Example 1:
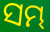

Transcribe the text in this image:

ସମ୍ଭ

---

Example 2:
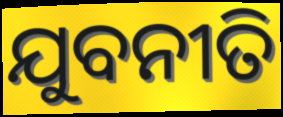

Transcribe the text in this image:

ଯୁବନୀତି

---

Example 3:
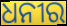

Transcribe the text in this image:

ଧନୀର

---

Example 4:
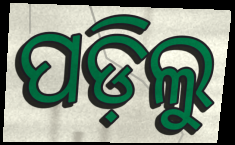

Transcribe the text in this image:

ପଡ଼ିଲୁ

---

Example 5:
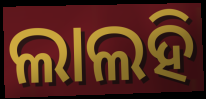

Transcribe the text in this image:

ଲାଲହି